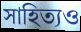
সাহিত্যও